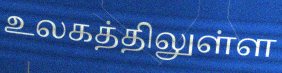
உலகத்திலுள்ள